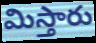
మిస్తారు